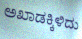
ಅಖಾಡಕ್ಕಿಳಿದು